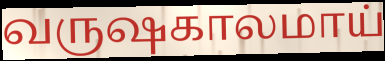
வருஷகாலமாய்